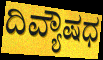
ದಿವ್ಯೌಷಧ